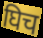
घिच